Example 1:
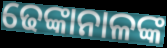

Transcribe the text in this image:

ଢେଙ୍କାନାଳଙ୍କ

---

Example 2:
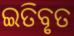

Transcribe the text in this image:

ଇତିବୃତ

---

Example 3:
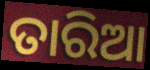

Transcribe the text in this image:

ତାରିଆ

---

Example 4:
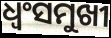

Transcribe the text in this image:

ଧ୍ୱଂସମୁଖୀ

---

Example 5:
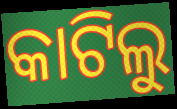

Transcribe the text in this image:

କାଟିଲୁ